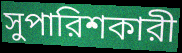
সুপারিশকারী